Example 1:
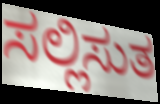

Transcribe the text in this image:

ಸಲ್ಲಿಸುತ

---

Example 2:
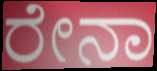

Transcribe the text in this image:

ರೇನಾ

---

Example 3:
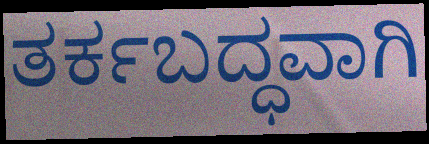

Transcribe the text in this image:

ತರ್ಕಬದ್ಧವಾಗಿ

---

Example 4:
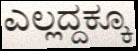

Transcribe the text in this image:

ಎಲ್ಲದ್ದಕ್ಕೂ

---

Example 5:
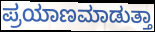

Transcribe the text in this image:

ಪ್ರಯಾಣಮಾಡುತ್ತಾ